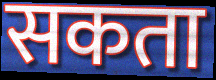
सकता